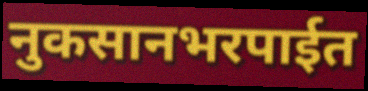
नुकसानभरपाईत